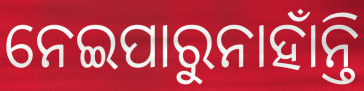
ନେଇପାରୁନାହାଁନ୍ତି